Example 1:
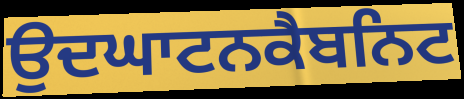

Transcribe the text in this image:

ਉਦਘਾਟਨਕੈਬਨਿਟ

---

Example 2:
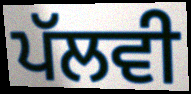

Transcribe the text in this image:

ਪੱਲਵੀ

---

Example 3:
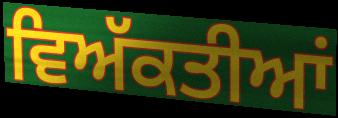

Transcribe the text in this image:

ਵਿਅੱਕਤੀਆਂ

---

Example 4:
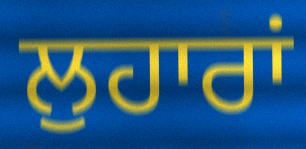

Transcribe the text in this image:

ਲੁਹਾਰਾਂ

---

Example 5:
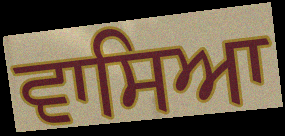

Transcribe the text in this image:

ਵਾਸਿਆ